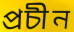
প্ৰচীন